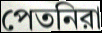
পেতনিরা